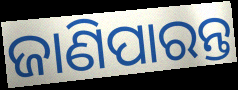
ଜାଣିପାରନ୍ତ